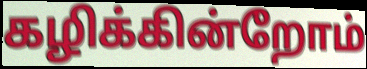
கழிக்கின்றோம்